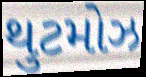
થુટમોઝ